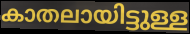
കാതലായിട്ടുള്ള